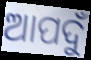
ଆପଦୁଁ